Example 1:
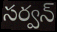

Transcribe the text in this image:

సర్వన్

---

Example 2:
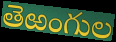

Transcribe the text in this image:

తెఱంగుల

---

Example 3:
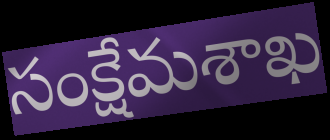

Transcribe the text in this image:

సంక్షేమశాఖ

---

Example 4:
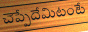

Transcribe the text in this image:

చెప్పేదేమిటంటే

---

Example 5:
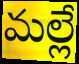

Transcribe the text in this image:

మల్లే